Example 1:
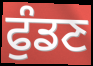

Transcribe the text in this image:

ਫੁੰਡਣ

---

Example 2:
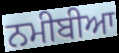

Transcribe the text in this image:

ਨਮੀਬੀਆ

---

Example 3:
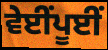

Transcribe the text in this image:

ਵੇਈਂਪੂਈਂ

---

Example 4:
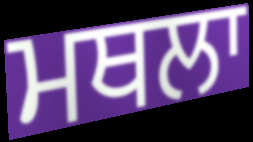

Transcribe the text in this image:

ਮਥਲਾ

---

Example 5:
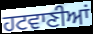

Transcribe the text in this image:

ਹਟਵਾਣੀਆਂ